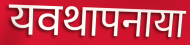
यवथापनाया